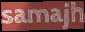
samajh